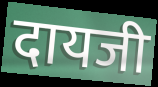
दायजी